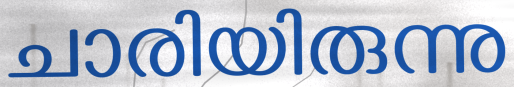
ചാരിയിരുന്നു